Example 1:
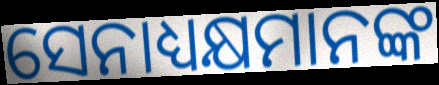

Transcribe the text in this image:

ସେନାଧ୍ୟକ୍ଷମାନଙ୍କ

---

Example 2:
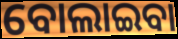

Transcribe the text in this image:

ବୋଲାଇବା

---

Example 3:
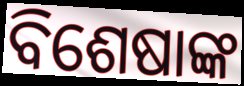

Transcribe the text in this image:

ବିଶେଷାଙ୍କ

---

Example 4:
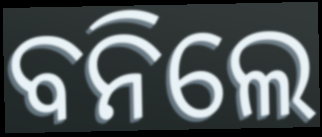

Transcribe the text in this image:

ବନିଲେ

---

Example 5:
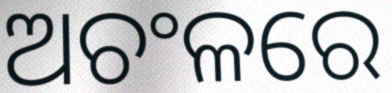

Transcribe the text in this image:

ଅଚଂଳରେ